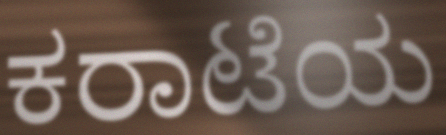
ಕರಾಟೆಯ